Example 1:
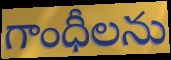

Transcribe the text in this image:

గాంధీలను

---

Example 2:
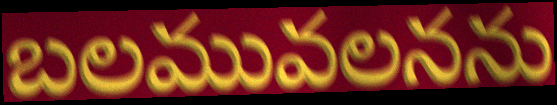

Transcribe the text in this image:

బలమువలనను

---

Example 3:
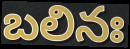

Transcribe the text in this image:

బలినః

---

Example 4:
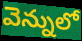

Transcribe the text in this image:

వెన్నులో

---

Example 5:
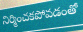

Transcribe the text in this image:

నిర్మించకపోవడంతో